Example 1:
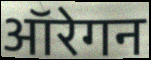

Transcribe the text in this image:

ऑरेगन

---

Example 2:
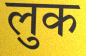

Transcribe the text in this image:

लुक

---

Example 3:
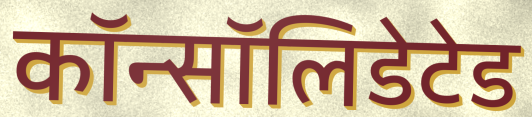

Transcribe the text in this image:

कॉन्सॉलिडेटेड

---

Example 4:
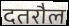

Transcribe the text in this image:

दतरौल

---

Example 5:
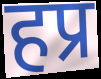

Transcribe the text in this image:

हप्र